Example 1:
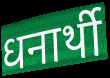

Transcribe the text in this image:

धनार्थी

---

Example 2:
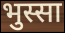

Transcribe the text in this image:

भुस्सा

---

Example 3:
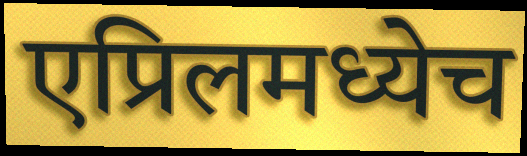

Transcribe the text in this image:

एप्रिलमध्येच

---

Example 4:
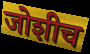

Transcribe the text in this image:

जोशीच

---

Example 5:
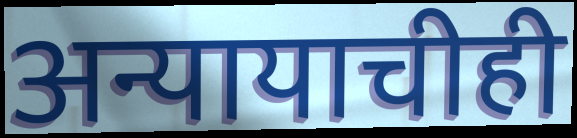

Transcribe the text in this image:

अन्यायाचीही